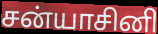
சன்யாசினி